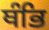
ਥੰਭਿ